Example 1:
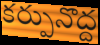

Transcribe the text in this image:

కర్పునొద్ద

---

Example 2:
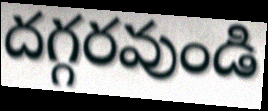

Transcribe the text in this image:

దగ్గరవుండి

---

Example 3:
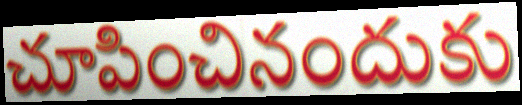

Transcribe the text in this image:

చూపించినందుకు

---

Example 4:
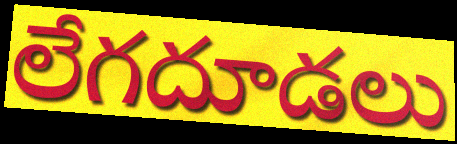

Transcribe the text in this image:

లేగదూడలు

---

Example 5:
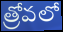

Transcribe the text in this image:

త్రోవలో